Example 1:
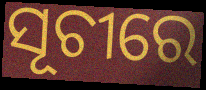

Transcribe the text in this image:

ସୂଚୀରେ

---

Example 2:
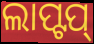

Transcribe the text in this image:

ଲାପ୍ଟପ୍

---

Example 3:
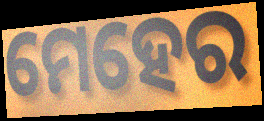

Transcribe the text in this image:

ମେହେର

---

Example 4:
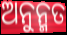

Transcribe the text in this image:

ଅନୁନ୍ମତ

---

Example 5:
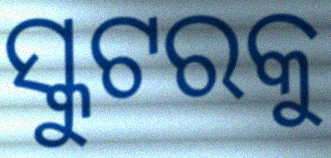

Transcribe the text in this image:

ସ୍କୁଟରକୁ